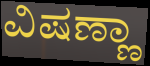
ವಿಷಣ್ಣಾ